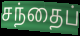
சந்தைப்